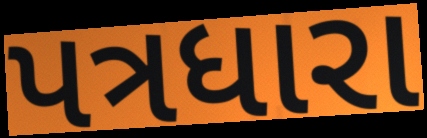
પત્રધારા